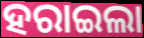
ହରାଇଲା